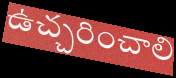
ఉచ్చరించాలి